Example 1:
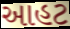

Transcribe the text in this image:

આહટ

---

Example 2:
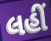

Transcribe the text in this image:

લહીં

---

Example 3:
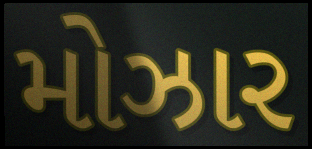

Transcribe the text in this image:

મોઝાર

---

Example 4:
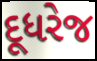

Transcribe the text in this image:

દૂધરેજ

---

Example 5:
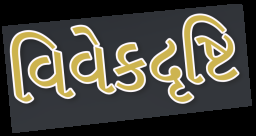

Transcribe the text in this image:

વિવેકદૃષ્ટિ